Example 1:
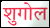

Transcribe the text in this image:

शुगोल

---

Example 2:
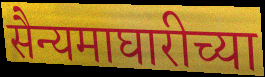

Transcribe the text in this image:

सैन्यमाघारीच्या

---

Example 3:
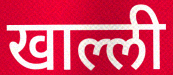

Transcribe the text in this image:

खाल्ली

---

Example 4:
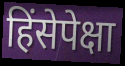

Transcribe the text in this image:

हिंसेपेक्षा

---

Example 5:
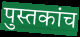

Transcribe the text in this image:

पुस्तकांच